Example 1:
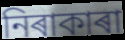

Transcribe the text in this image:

নিৰাকাৰা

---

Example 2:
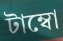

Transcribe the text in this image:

টাম্বো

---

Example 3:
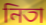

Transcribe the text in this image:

নিতা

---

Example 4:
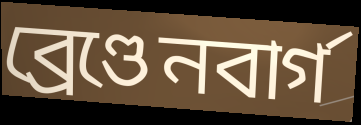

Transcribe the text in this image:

ব্ৰেণ্ডেনবাৰ্গ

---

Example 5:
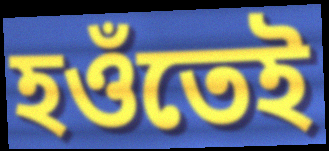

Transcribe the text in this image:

হওঁতেই